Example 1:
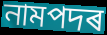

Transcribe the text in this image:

নামপদৰ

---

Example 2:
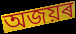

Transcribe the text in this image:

অজয়ৰ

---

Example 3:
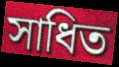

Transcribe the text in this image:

সাধিত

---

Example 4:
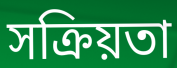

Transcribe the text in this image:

সক্ৰিয়তা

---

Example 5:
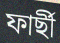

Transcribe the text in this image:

ফাৰ্ছী